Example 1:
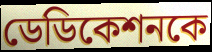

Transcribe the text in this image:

ডেডিকেশনকে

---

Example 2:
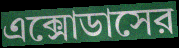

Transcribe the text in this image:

এক্সোডাসের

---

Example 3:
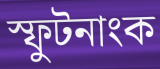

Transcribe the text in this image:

স্ফুটনাংক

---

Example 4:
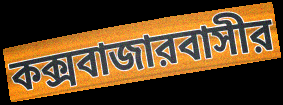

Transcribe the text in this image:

কক্সবাজারবাসীর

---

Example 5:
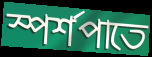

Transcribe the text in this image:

স্পর্শপাতে